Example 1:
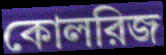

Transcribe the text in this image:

কোলরিজ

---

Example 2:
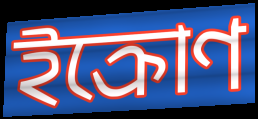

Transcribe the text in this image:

ইক্রোণ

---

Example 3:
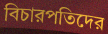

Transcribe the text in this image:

বিচারপতিদের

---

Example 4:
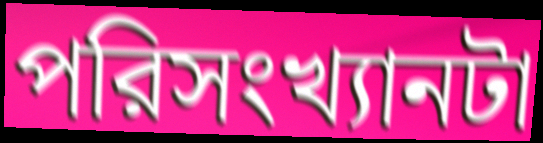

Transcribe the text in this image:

পরিসংখ্যানটা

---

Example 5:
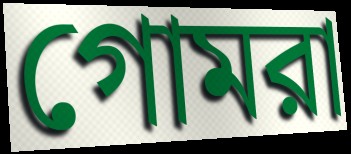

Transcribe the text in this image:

গোমরা